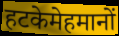
हटकेमेहमानों